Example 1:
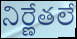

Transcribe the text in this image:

నిర్ణేతలే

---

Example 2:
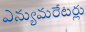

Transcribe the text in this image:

ఎన్యుమరేటర్లు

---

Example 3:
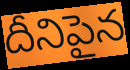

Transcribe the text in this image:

దీనిపైన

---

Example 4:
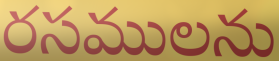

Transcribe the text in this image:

రసములను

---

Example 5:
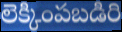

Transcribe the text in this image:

లెక్కింపబడిరి